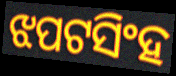
ଝପଟସିଂହ